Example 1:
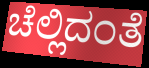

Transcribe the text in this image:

ಚೆಲ್ಲಿದಂತೆ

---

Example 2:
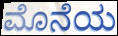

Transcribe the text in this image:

ಮೊನೆಯ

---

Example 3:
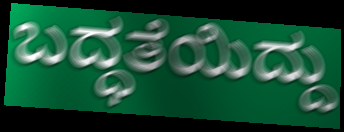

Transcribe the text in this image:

ಬದ್ಧತೆಯಿದ್ದು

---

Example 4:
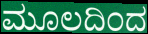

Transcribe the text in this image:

ಮೂಲದಿಂದ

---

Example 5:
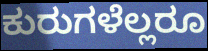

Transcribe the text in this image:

ಕುರುಗಳೆಲ್ಲರೂ